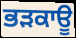
ਭੜਕਾਊ